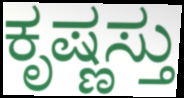
ಕೃಷ್ಣಸ್ತು